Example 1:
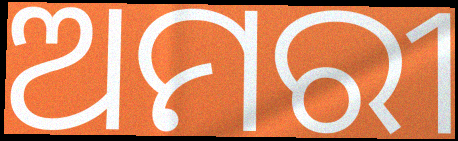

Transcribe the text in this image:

ଅମରୀ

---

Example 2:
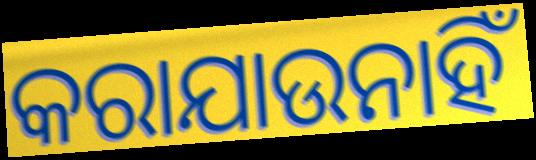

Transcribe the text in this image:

କରାଯାଉନାହିଁ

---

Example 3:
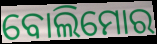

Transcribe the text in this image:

ବୋଲିମୋର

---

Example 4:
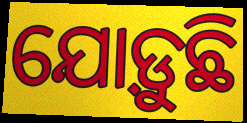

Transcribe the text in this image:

ଯୋଡ଼ୁଛି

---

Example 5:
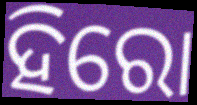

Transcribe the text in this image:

ହିରୋ